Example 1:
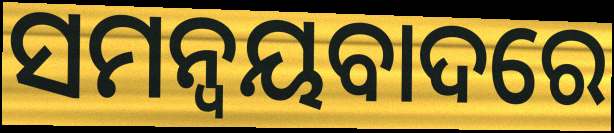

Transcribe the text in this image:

ସମନ୍ୱୟବାଦରେ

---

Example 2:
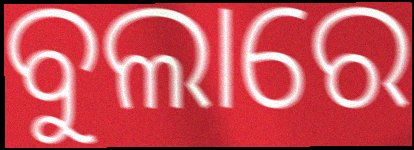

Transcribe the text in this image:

ବୁଲାରେ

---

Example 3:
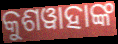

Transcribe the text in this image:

କୁଶୱାହାଙ୍କ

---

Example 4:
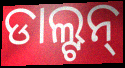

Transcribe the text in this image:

ଡାଲ୍ଟନ୍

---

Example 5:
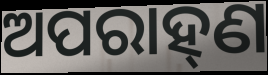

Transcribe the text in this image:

ଅପରାହ୍‌ଣ